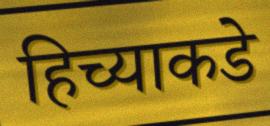
हिच्याकडे